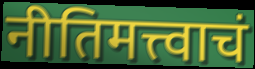
नीतिमत्त्वाचं